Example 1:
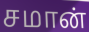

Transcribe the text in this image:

சமான்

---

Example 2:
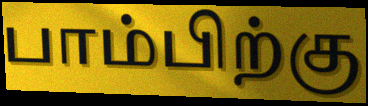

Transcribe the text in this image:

பாம்பிற்கு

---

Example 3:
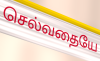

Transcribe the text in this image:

செல்வதையே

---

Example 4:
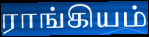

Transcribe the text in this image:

ராங்கியம்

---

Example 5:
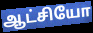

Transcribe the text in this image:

ஆட்சியோ